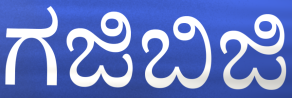
ಗಜಿಬಿಜಿ